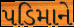
પડિમાને